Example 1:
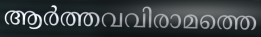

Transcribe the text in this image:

ആർത്തവവിരാമത്തെ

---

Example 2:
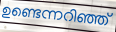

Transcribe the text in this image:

ഉണ്ടെന്നറിഞ്ഞ്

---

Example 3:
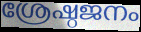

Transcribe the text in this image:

ശ്രേഷ്ഠജനം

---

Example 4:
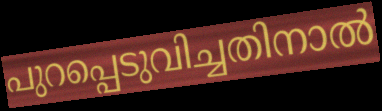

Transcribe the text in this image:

പുറപ്പെടുവിച്ചതിനാൽ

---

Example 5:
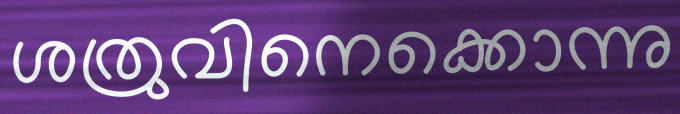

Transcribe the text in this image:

ശത്രുവിനെക്കൊന്നു